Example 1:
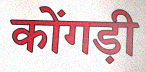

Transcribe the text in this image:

कोंगड़ी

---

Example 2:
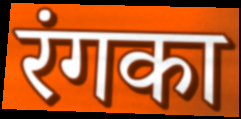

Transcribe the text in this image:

रंगका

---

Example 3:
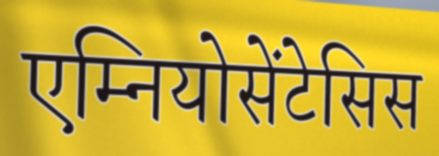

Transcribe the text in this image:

एम्नियोसेंटेसिस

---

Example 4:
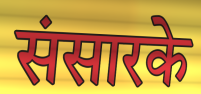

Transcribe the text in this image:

संसारके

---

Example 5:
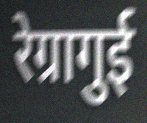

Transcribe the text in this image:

रेग्रागुई